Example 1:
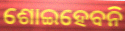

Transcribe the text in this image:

ଶୋଇହେବନି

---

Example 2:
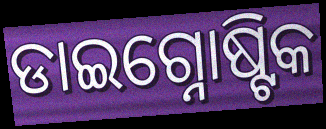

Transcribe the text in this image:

ଡାଇଗ୍ନୋଷ୍ଟିକ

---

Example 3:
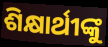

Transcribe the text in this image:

ଶିକ୍ଷାର୍ଥୀଙ୍କୁ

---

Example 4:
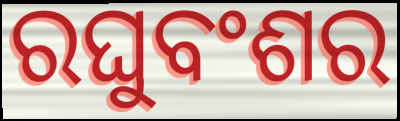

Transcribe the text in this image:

ରଘୁବଂଶର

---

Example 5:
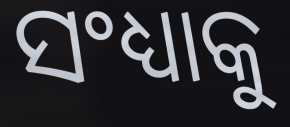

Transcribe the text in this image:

ସଂଧ୍ୟାକୁ